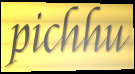
pichhu